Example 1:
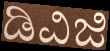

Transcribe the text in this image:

ಡಿವಿಜಿ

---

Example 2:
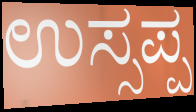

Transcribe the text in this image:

ಉಸ್ಸಪ್ಪ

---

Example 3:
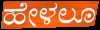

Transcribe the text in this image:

ಹೇಳಲೂ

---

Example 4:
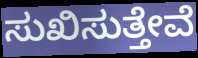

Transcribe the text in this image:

ಸುಖಿಸುತ್ತೇವೆ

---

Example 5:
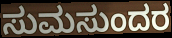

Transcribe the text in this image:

ಸುಮಸುಂದರ